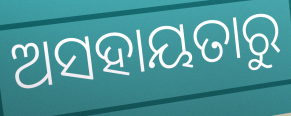
ଅସହାୟତାରୁ